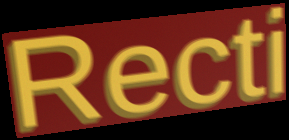
Recti